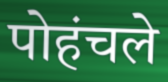
पोहंचले